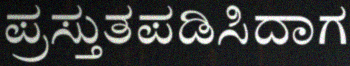
ಪ್ರಸ್ತುತಪಡಿಸಿದಾಗ